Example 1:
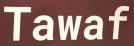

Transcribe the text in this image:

Tawaf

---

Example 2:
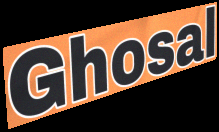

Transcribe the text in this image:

Ghosal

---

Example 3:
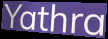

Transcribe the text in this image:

Yathra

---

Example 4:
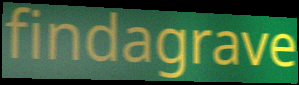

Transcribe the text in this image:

findagrave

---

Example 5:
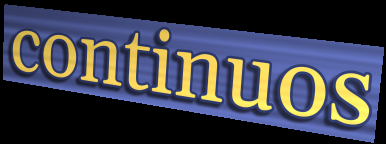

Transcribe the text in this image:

continuos